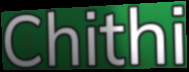
Chithi